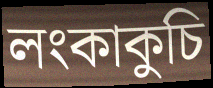
লংকাকুচি